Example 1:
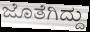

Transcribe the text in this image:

ಜೊತೆಗಿದ್ದು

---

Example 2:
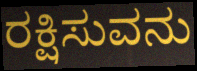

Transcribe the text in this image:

ರಕ್ಷಿಸುವನು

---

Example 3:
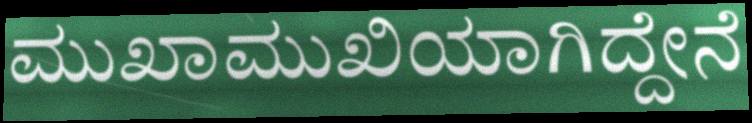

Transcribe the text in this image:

ಮುಖಾಮುಖಿಯಾಗಿದ್ದೇನೆ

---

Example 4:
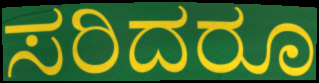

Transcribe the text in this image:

ಸರಿದರೂ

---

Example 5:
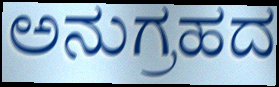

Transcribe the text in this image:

ಅನುಗ್ರಹದ